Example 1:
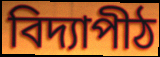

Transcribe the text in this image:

বিদ্যাপীঠ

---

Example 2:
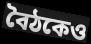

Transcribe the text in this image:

বৈঠকেও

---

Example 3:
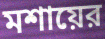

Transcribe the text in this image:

মশায়ের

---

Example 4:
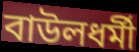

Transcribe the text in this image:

বাউলধর্মী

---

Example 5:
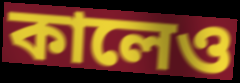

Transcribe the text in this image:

কালেও